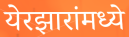
येरझारांमध्ये